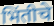
भिंतीचे